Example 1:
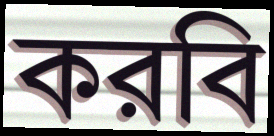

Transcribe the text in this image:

করবি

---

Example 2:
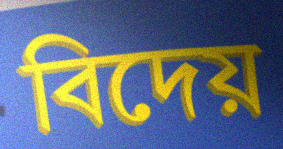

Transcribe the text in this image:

বিদেয়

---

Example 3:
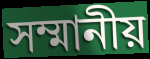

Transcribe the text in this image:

সম্মানীয়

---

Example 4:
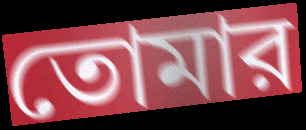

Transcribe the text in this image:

তোমার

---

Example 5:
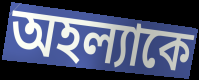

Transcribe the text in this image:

অহল্যাকে